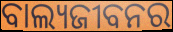
ବାଲ୍ୟଜୀବନର